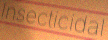
Insecticidal